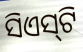
ସିଏସ୍‌ଟି